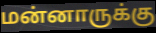
மன்னாருக்கு